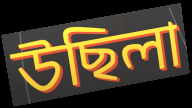
উছিলা